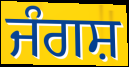
ਜੰਗਸ਼